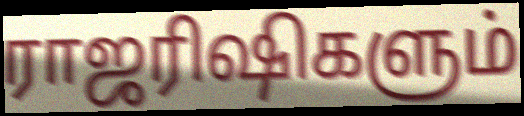
ராஜரிஷிகளும்